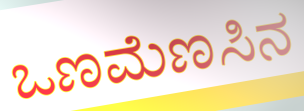
ಒಣಮೆಣಸಿನ